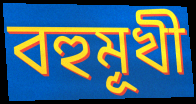
বহুমূখী